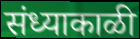
संध्याकाळी